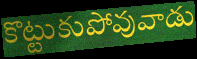
కొట్టుకుపోవువాడు